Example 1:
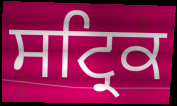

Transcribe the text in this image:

ਸਟ੍ਰਿਕ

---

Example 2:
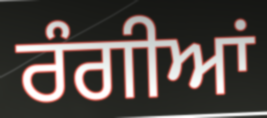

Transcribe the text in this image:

ਰੰਗੀਆਂ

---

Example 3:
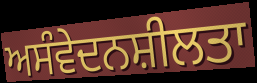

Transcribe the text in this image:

ਅਸੰਵੇਦਨਸ਼ੀਲਤਾ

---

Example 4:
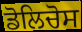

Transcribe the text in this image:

ਡੋਲਿਚੋਸ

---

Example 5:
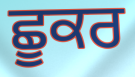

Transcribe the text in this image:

ਛੂਕਰ